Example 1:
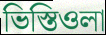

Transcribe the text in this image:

ভিস্তিওলা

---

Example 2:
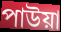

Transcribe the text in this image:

পাউয়া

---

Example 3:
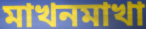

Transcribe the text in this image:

মাখনমাখা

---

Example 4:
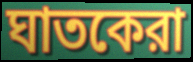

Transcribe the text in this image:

ঘাতকেরা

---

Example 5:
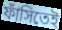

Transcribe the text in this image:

ফাঁসিতেই